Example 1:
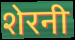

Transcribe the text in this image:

शेरनी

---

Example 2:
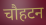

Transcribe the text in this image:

चौहटन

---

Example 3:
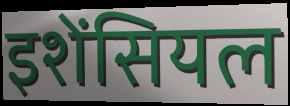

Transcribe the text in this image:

इशेंसियल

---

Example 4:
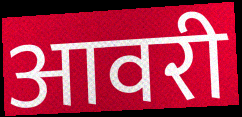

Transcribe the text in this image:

आवरी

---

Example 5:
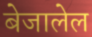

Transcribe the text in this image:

बेजालेल